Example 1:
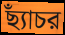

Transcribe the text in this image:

ছ্যাঁচর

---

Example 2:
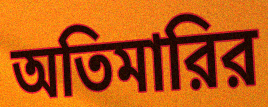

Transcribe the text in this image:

অতিমারির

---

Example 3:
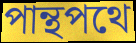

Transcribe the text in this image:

পান্থপথে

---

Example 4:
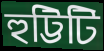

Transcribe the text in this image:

হুট্টিটি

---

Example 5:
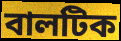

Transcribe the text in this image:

বালটিক